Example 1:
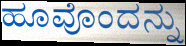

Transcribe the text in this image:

ಹೂವೊಂದನ್ನು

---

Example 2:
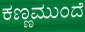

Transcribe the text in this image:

ಕಣ್ಣಮುಂದೆ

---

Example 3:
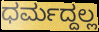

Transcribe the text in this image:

ಧರ್ಮದ್ದಲ್ಲ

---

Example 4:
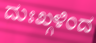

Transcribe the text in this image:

ದುಃಖ್ಗಳಿಂದ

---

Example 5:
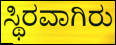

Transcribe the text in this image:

ಸ್ಥಿರವಾಗಿರು